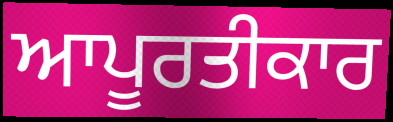
ਆਪੂਰਤੀਕਾਰ